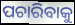
ପଚାରିବାକୁ